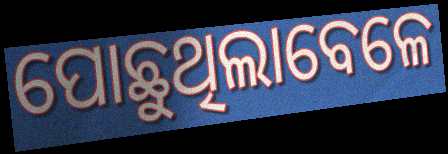
ପୋଛୁଥିଲାବେଳେ